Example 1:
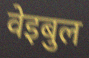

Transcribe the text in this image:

वेइबुल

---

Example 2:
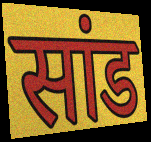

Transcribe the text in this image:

सांड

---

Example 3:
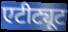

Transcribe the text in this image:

एटीट्यूट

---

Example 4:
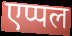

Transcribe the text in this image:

एप्पल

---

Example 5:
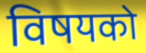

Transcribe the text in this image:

विषयको